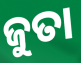
ଜୁତା